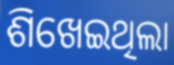
ଶିଖେଇଥିଲା